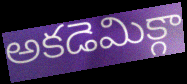
అకడెమిక్గా